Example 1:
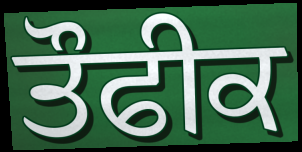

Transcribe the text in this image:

ਤੌਫੀਕ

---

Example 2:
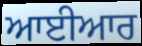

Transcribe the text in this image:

ਆਈਆਰ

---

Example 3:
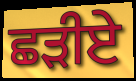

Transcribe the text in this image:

ਛੜੀਏ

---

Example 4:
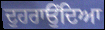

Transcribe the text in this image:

ਦੁਹਰਾਉਂਦਿਆ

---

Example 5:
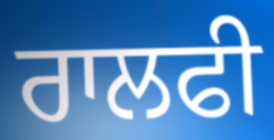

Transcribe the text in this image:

ਰਾਲਫੀ